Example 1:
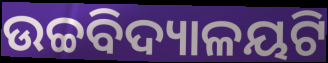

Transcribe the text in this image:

ଉଚ୍ଚବିଦ୍ୟାଳୟଟି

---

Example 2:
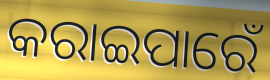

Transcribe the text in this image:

କରାଇପାରେଁ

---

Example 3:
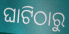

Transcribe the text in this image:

ଘାଟିଠାରୁ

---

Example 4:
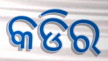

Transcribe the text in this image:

କଡିର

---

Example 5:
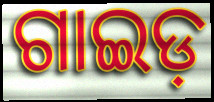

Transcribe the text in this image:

ଗାଇଡ଼